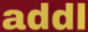
addl